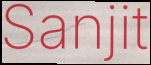
Sanjit